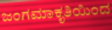
ಜಂಗಮಾಕೃತಿಯಿಂದ